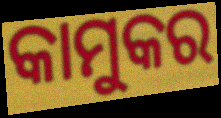
କାମୁକର